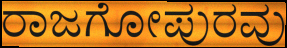
ರಾಜಗೋಪುರವು